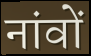
नांवों